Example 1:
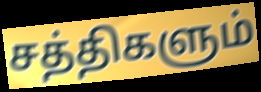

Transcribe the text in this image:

சத்திகளும்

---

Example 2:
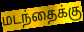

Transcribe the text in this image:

மடந்தைக்கு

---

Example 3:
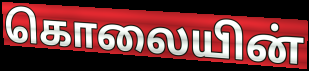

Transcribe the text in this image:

கொலையின்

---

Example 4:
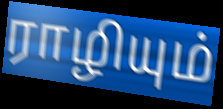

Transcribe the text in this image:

ராழியும்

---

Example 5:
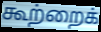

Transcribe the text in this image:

கூற்றைக்